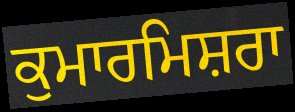
ਕੁਮਾਰਮਿਸ਼ਰਾ